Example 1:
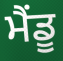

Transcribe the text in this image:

ਮੈਂਡੂ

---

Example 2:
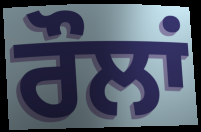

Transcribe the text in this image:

ਰੌਲਾਂ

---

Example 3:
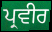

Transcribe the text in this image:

ਪ੍ਰਵੀਰ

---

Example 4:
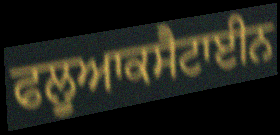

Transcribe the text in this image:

ਫਲੂਆਕਸੈਟਾਈਨ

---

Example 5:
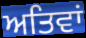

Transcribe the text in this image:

ਅਤਿਵਾਂ